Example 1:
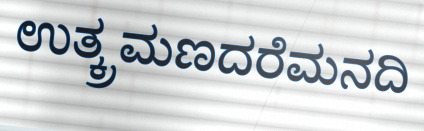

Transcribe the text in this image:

ಉತ್ಕ್ರಮಣದರೆಮನದಿ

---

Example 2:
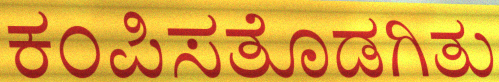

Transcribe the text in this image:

ಕಂಪಿಸತೊಡಗಿತು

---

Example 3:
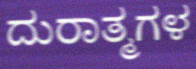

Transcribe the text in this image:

ದುರಾತ್ಮಗಳ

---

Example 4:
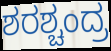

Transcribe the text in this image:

ಶರಶ್ಚಂದ್ರ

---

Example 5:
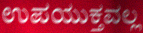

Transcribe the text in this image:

ಉಪಯುಕ್ತವಲ್ಲ